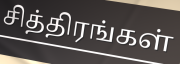
சித்திரங்கள்